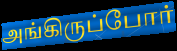
அங்கிருப்போர்